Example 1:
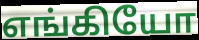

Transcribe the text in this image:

எங்கியோ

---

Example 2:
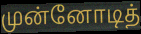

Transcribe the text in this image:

முன்னோடித்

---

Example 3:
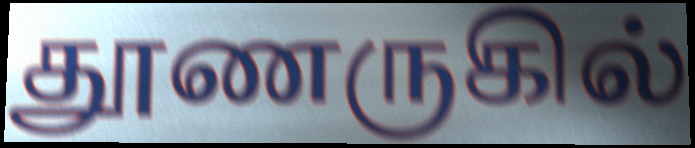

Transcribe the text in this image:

தூணருகில்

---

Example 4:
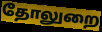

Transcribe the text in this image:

தோலுறை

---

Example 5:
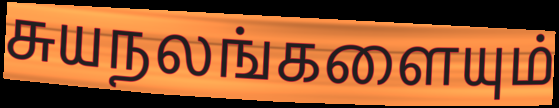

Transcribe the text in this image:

சுயநலங்களையும்